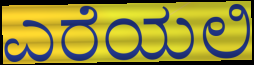
ಎರೆಯಲಿ